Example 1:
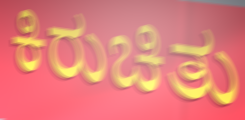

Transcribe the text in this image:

ಕಿರುಚಿತು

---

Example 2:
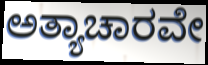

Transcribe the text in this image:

ಅತ್ಯಾಚಾರವೇ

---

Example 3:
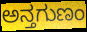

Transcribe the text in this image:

ಅನ್ತಗುಣಂ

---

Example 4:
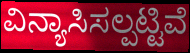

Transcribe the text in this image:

ವಿನ್ಯಾಸಿಸಲ್ಪಟ್ಟಿವೆ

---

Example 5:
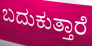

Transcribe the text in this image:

ಬದುಕುತ್ತಾರೆ